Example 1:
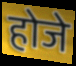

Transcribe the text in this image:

होजे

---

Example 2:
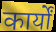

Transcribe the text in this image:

कार्यों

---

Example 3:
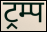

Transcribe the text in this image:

ट्रम्प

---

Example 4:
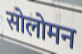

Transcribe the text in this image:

सोलोमन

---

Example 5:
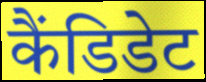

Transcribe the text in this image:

कैंडिडेट